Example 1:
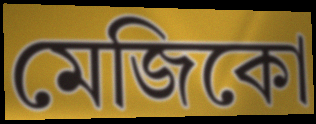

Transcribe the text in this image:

মেজিকো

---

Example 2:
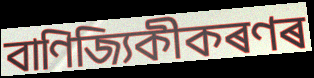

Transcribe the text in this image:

বাণিজ্যিকীকৰণৰ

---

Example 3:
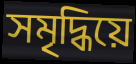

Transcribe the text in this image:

সমৃদ্ধিয়ে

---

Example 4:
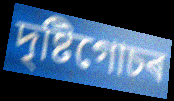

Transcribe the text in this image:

দৃষ্টিগোচৰ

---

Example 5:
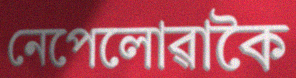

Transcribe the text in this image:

নেপেলোৱাকৈ